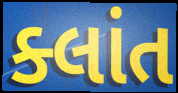
ક્લાંત